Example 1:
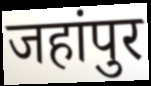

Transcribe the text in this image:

जहांपुर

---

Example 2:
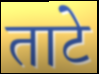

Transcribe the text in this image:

ताटे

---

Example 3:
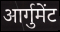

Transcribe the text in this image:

आर्गुमेंट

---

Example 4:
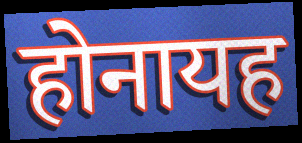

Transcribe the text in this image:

होनायह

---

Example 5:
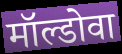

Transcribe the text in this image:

मॉल्डोवा